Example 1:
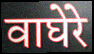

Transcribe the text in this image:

वाघेरे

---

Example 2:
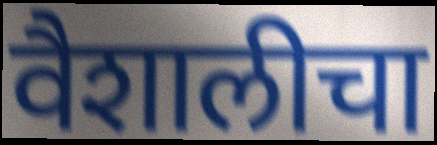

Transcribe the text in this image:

वैशालीचा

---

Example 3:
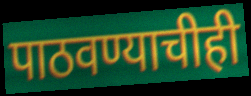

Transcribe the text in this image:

पाठवण्याचीही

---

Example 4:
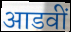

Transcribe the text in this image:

आडवीं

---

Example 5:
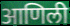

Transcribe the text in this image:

आणिली